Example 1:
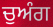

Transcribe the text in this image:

ਚੁਅੰਗ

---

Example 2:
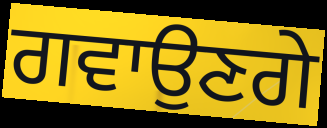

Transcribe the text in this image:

ਗਵਾਉਣਗੇ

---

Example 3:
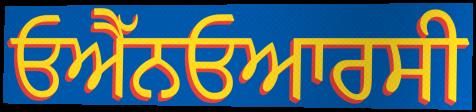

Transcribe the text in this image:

ਓਐੱਨਓਆਰਸੀ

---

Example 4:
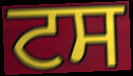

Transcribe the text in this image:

ਟਸ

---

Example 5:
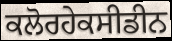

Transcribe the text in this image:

ਕਲੋਰਹੇਕਸੀਡੀਨ